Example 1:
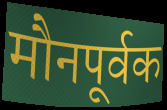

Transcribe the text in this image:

मौनपूर्वक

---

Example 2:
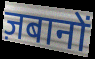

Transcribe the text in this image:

ज़बानों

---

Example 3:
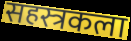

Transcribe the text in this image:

सहस्त्रकला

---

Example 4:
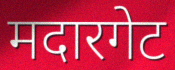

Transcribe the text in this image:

मदारगेट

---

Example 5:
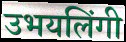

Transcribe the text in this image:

उभयलिंगी